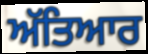
ਅੱਤਿਆਰ